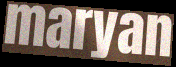
maryan